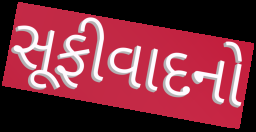
સૂફીવાદનો